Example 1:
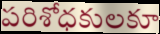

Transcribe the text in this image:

పరిశోధకులకూ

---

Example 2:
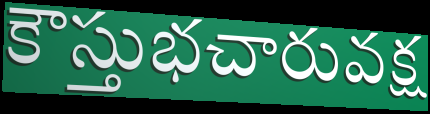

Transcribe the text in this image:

కౌస్తుభచారువక్ష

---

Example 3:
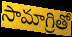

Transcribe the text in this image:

సామాగ్రితో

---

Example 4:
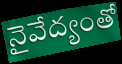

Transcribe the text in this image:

నైవేద్యంతో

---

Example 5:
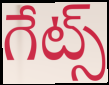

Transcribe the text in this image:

గేట్స్